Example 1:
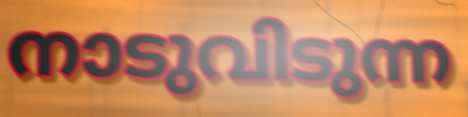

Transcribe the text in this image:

നാടുവിടുന്ന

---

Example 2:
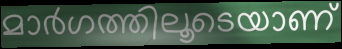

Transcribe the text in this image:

മാർഗത്തിലൂടെയാണ്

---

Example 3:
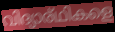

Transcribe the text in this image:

വിദ്യാര്ഥികളെ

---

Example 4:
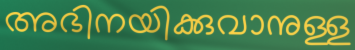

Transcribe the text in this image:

അഭിനയിക്കുവാനുള്ള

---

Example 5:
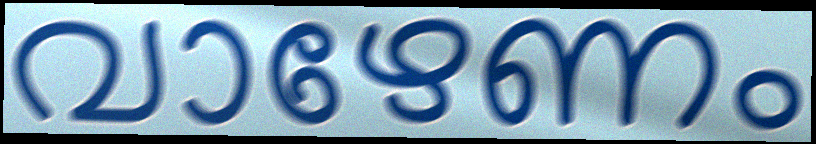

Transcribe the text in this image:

വാഴേണം